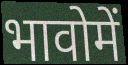
भावोमें